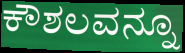
ಕೌಶಲವನ್ನೂ